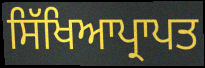
ਸਿੱਖਿਆਪ੍ਰਾਪਤ